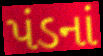
પંડનાં